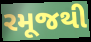
રમૂજથી